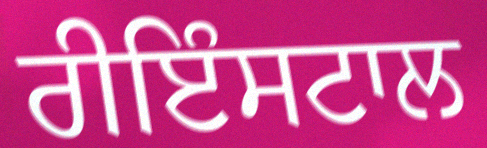
ਰੀਇੰਸਟਾਲ